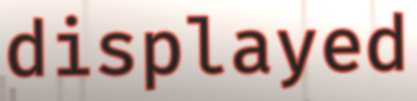
displayed